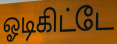
ஓடிகிட்டே